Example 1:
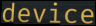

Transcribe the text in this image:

device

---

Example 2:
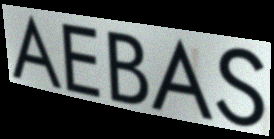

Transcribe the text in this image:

AEBAS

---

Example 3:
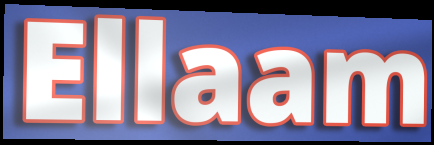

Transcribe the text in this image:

Ellaam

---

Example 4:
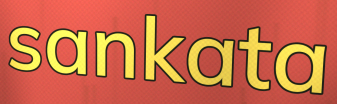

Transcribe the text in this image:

sankata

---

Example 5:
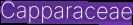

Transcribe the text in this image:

Capparaceae